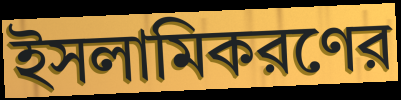
ইসলামিকরণের